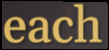
each